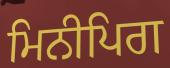
ਮਿਨੀਪਿਗ